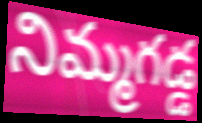
నిమ్మగడ్డ